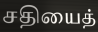
சதியைத்